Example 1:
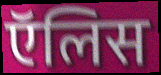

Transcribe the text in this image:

ऍलिस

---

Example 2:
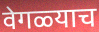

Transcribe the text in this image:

वेगळ्याच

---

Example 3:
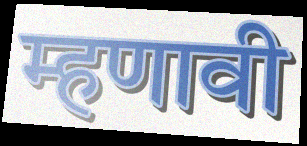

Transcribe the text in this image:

म्हणावी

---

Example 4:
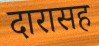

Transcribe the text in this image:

दारासह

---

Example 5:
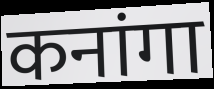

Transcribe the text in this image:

कनांगा